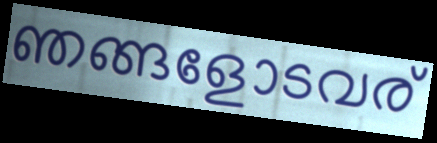
ഞങ്ങളോടവര്